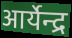
आर्येन्द्र